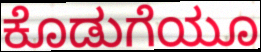
ಕೊಡುಗೆಯೂ